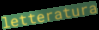
letteratura